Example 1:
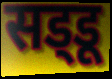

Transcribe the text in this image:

सड्‌डू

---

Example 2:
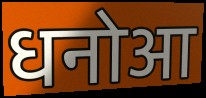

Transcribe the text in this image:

धनोआ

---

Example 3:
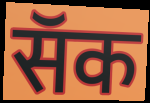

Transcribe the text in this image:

सॅक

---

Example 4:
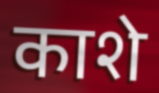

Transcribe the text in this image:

काशे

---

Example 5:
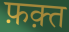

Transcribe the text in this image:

फ़क़्त